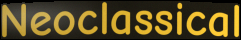
Neoclassical